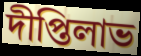
দীপ্তিলাভ